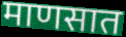
माणसात